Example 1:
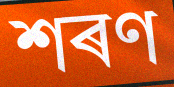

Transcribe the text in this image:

শৰণ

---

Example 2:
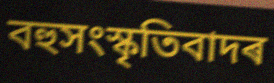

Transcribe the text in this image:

বহুসংস্কৃতিবাদৰ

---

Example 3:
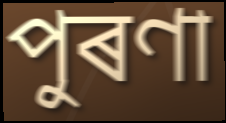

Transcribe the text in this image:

পুৰণা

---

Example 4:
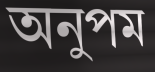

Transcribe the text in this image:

অনুপম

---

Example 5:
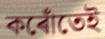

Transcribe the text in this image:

কৰোঁতেই